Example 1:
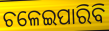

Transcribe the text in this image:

ଚଳେଇପାରିବି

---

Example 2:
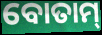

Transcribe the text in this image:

ବୋତାମ୍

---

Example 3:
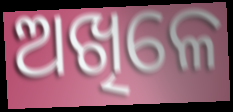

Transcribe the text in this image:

ଅଖିଳେ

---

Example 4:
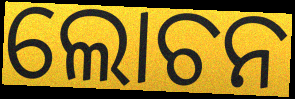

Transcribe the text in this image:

ଲୋଚନ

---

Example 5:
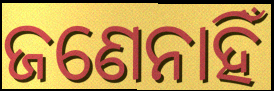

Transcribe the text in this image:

ଜଣେନାହିଁ